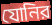
যোনির